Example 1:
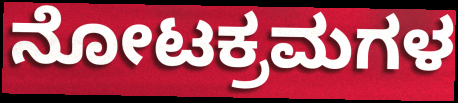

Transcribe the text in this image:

ನೋಟಕ್ರಮಗಳ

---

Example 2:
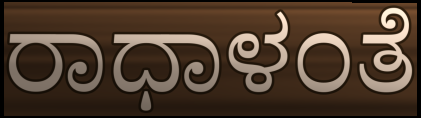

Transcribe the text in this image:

ರಾಧಾಳಂತೆ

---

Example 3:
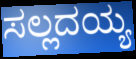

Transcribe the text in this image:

ಸಲ್ಲದಯ್ಯ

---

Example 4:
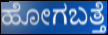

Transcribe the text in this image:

ಹೋಗಬತ್ತೆ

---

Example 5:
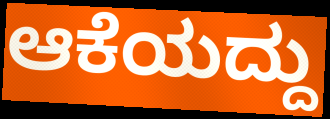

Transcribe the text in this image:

ಆಕೆಯದ್ದು